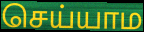
செய்யாம